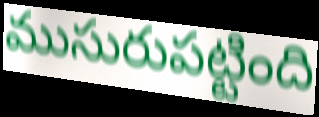
ముసురుపట్టింది